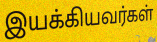
இயக்கியவர்கள்